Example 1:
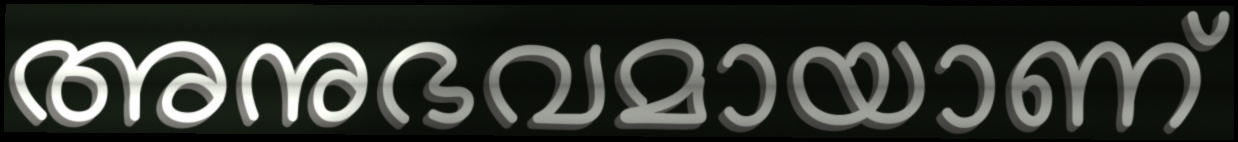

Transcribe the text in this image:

അനുഭവമായാണ്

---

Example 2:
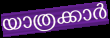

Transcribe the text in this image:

യാത്രക്കാർ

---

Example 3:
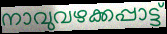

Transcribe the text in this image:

നാവുവഴക്കപ്പാട്ട്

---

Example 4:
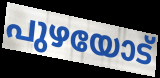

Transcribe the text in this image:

പുഴയോട്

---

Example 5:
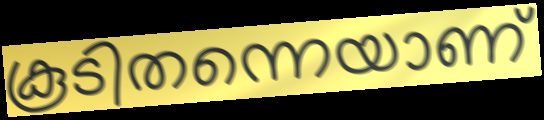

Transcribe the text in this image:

കൂടിതന്നെയാണ്